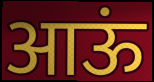
आऊं